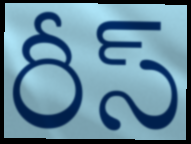
రీస్